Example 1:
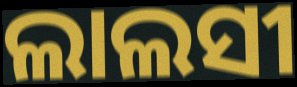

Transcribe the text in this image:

ଲାଲସୀ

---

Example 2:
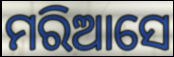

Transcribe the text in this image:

ମରିଆସେ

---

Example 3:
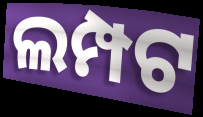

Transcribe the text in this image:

ଲମ୍ପଟ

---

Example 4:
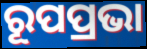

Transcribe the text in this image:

ରୂପପ୍ରଭା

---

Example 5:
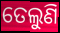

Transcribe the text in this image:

ତେଲୁଣି